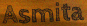
Asmita